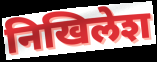
निखिलेश